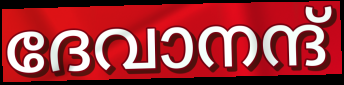
ദേവാനന്ദ്